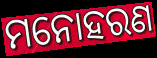
ମନୋହରଣ